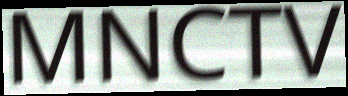
MNCTV